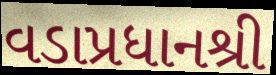
વડાપ્રધાનશ્રી